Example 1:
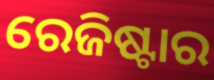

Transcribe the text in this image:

ରେଜିଷ୍ଟାର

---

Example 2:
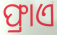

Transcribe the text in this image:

ଫ୍ରାଏ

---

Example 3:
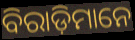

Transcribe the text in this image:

ବିରାଡ଼ିମାନେ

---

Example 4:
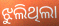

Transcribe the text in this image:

ଝୁଲିଥିଲା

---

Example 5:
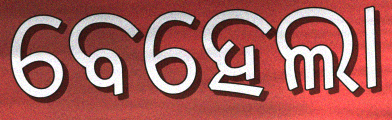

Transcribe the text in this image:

ବେହେଲା